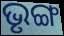
ଭୃଙ୍ଗ